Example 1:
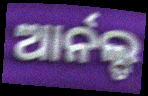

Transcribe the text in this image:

ଆର୍ନଲ୍ଡ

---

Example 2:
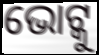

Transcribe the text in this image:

ଭୋଟ୍କୁ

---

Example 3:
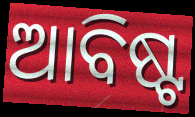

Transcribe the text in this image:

ଆବିଷ୍ଟ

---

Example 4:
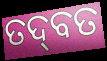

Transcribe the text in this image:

ତଦ୍‌ବତ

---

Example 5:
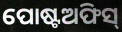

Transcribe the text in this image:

ପୋଷ୍ଟଅଫିସ୍